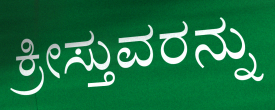
ಕ್ರೀಸ್ತುವರನ್ನು